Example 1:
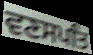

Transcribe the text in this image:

ਵਣਸਪਤਿ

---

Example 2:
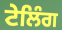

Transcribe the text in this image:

ਟੇਲਿੰਗ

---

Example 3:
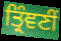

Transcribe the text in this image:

ਤ੍ਰਿੰਞਣੀਂ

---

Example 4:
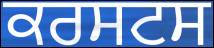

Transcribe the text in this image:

ਕਰਸਟਸ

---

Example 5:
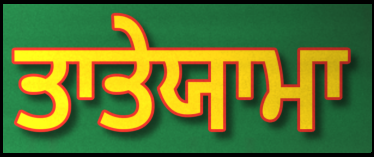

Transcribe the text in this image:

ਤਾਤੇਯਾਮਾ